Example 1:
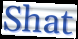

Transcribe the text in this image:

Shat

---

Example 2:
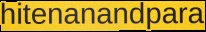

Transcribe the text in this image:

hitenanandpara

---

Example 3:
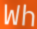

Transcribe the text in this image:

Wh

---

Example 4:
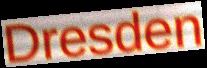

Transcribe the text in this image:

Dresden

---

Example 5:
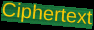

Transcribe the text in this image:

Ciphertext